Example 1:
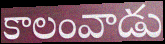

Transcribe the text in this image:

కాలంవాడు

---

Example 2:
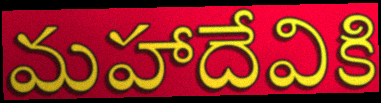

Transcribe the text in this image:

మహాదేవికి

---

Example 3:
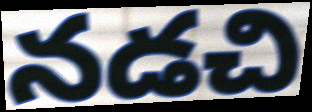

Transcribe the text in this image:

నడచి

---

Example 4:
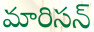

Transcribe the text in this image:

మారిసన్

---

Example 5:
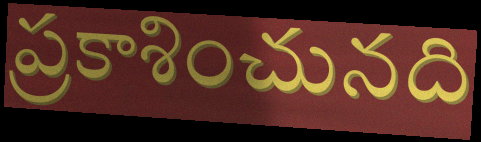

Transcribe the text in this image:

ప్రకాశించునది